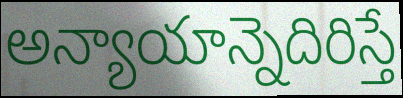
అన్యాయాన్నెదిరిస్తే